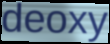
deoxy